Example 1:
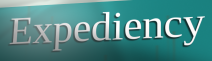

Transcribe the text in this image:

Expediency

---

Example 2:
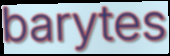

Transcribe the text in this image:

barytes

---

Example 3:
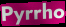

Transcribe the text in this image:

Pyrrho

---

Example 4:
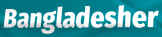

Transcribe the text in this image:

Bangladesher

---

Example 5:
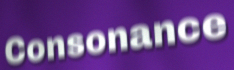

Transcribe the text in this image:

Consonance